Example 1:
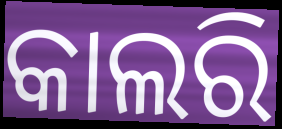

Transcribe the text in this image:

କାଲରି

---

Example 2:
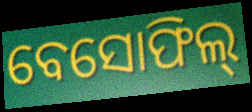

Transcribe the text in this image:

ବେସୋଫିଲ୍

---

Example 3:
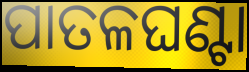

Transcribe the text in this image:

ପାତଳଘଣ୍ଟା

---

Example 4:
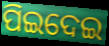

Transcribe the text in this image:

ପିଇଦେଇ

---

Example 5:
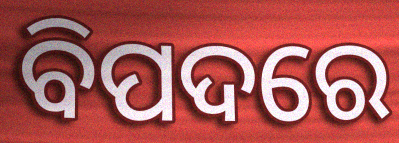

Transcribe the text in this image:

ବିପଦରେ